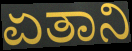
ಏತಾನಿ